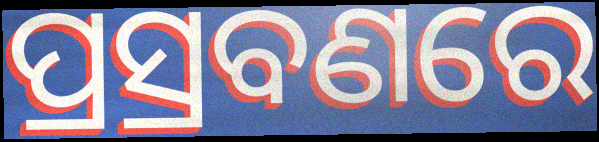
ପ୍ରସ୍ରବଣରେ